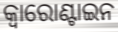
କ୍ୱାରୋଣ୍ଟାଇନ